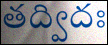
తద్విదః